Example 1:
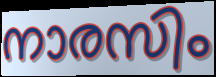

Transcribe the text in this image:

നാരസിം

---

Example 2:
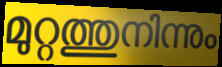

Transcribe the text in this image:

മുറ്റത്തുനിന്നും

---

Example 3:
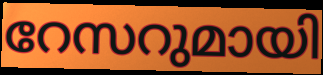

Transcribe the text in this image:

റേസറുമായി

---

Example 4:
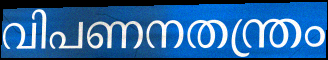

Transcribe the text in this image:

വിപണനതന്ത്രം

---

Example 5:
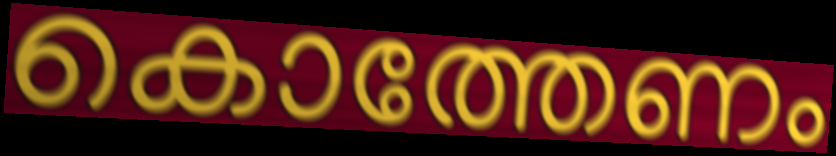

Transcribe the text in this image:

കൊത്തേണം